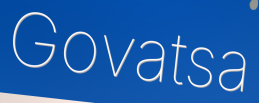
Govatsa